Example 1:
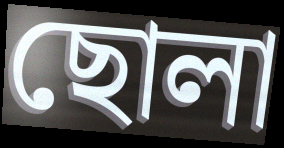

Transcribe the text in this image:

ছোলা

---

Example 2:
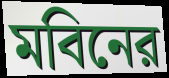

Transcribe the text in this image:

মবিনের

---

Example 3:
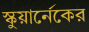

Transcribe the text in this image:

স্কুয়ার্নেকের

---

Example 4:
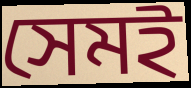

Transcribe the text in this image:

সেমই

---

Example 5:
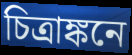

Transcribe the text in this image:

চিত্রাঙ্কনে